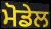
ਮੋਡੇਲ